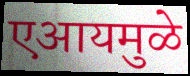
एआयमुळे